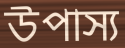
উপাস্য